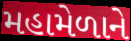
મહામેળાને